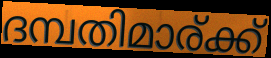
ദമ്പതിമാര്ക്ക്